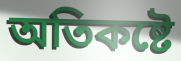
অতিকষ্টে